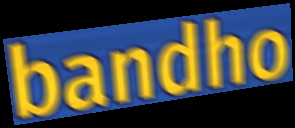
bandho